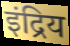
इंद्रिय